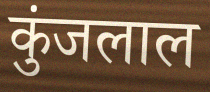
कुंजलाल